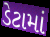
ડેટામાં